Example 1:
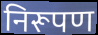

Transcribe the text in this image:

निरूपण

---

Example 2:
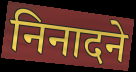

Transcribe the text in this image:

निनादने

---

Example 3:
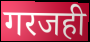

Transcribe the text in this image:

गरजही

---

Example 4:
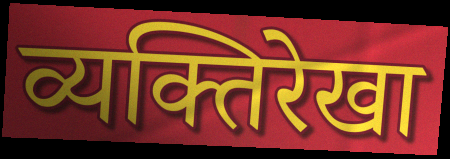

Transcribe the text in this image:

व्यक्तिरेखा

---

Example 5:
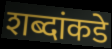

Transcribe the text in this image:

शब्दांकडे